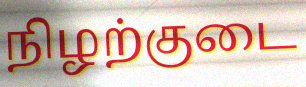
நிழற்குடை